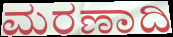
ಮರಣಾದಿ